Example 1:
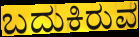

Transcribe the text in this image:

ಬದುಕಿರುವ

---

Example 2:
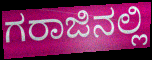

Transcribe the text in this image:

ಗರಾಜಿನಲ್ಲಿ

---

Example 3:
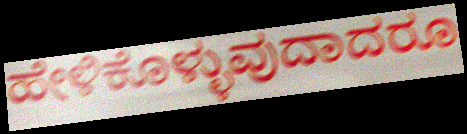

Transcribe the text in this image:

ಹೇಳಿಕೊಳ್ಳುವುದಾದರೂ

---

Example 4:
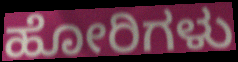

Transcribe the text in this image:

ಹೋರಿಗಳು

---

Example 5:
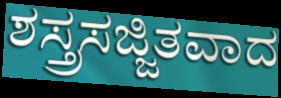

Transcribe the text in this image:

ಶಸ್ತ್ರಸಜ್ಜಿತವಾದ